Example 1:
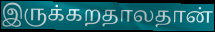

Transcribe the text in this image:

இருக்கறதாலதான்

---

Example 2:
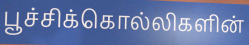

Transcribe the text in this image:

பூச்சிக்கொல்லிகளின்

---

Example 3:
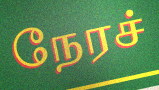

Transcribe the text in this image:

நேரச்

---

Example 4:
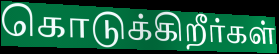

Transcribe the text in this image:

கொடுக்கிறீர்கள்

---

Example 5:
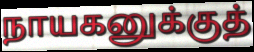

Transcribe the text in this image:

நாயகனுக்குத்